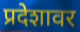
प्रदेशावर